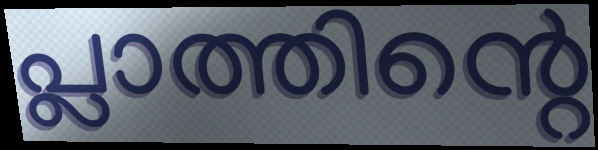
പ്ലാത്തിന്റെ